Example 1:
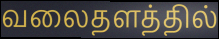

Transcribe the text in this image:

வலைதளத்தில்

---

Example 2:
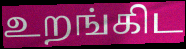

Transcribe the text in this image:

உறங்கிட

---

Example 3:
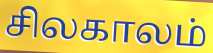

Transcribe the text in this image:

சிலகாலம்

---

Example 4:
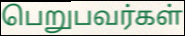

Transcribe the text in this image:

பெறுபவர்கள்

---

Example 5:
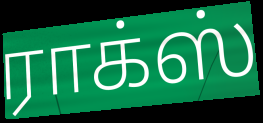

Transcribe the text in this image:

ராக்ஸ்